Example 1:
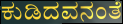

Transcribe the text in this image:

ಕುಡಿದವನಂತೆ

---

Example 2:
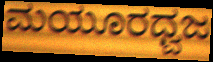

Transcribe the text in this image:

ಮಯೂರಧ್ವಜ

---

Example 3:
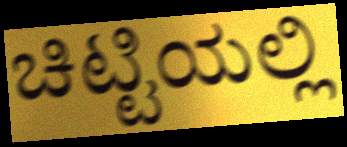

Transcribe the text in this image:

ಚಿಟ್ಟಿಯಲ್ಲಿ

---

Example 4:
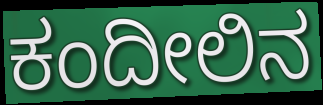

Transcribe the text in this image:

ಕಂದೀಲಿನ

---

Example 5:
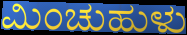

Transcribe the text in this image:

ಮಿಂಚುಹುಳು